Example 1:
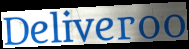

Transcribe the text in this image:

Deliveroo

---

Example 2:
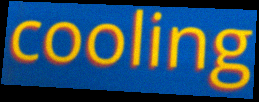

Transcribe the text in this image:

cooling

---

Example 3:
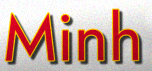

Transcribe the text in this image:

Minh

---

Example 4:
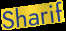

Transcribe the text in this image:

Sharif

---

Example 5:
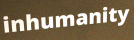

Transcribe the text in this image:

inhumanity